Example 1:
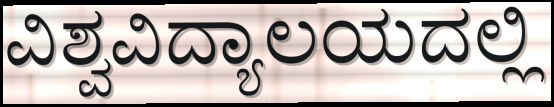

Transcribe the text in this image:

ವಿಶ್ವವಿದ್ಯಾಲಯದಲ್ಲಿ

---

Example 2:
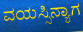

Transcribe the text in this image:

ವಯಸ್ಸಿನ್ಯಾಗ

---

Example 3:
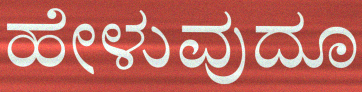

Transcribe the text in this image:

ಹೇಳುವುದೂ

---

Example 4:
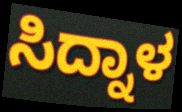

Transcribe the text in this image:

ಸಿದ್ನಾಳ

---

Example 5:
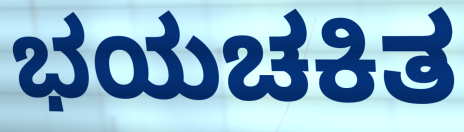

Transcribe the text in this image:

ಭಯಚಕಿತ